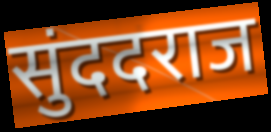
सुंददराज